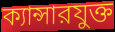
ক্যান্সারযুক্ত